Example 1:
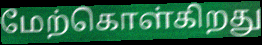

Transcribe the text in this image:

மேற்கொள்கிறது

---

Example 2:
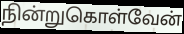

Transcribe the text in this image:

நின்றுகொள்வேன்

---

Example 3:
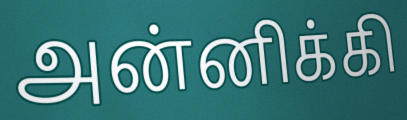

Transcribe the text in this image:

அன்னிக்கி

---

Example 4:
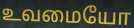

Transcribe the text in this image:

உவமையோ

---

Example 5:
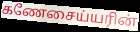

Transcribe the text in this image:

கணேசைய்யரின்